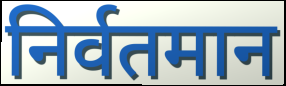
निर्वतमान